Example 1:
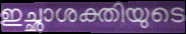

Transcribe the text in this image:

ഇച്ഛാശക്തിയുടെ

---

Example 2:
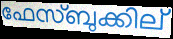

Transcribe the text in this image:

ഫേസ്ബുക്കില്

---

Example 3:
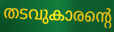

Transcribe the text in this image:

തടവുകാരന്റെ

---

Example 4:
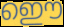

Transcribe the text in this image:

ഇൌ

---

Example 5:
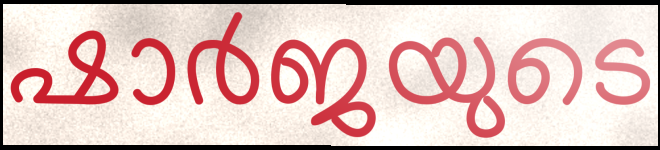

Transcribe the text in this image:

ഷാർജയുടെ